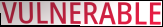
VULNERABLE